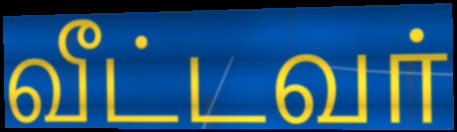
வீட்டவர்